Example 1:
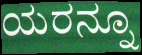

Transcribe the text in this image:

ಯರನ್ನೂ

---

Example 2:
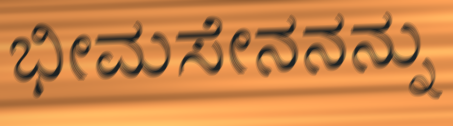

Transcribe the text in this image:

ಭೀಮಸೇನನನ್ನು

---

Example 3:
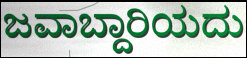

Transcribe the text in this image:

ಜವಾಬ್ದಾರಿಯದು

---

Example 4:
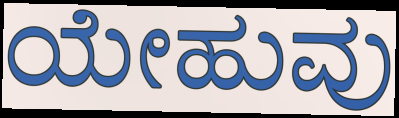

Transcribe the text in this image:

ಯೇಹುವು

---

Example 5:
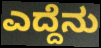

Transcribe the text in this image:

ಎದ್ದೆನು